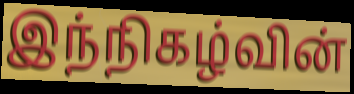
இந்நிகழ்வின்